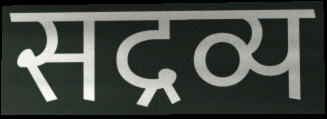
सद्रव्य